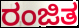
ರಂಜಿತ